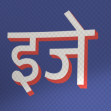
इजे